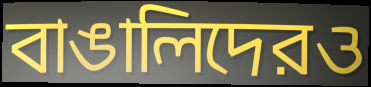
বাঙালিদেরও